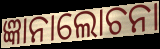
ଜ୍ଞାନାଲୋଚନା